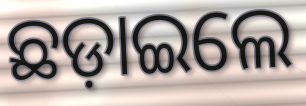
ଛଡ଼ାଇଲେ